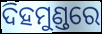
ଦିହମୁଣ୍ଡରେ